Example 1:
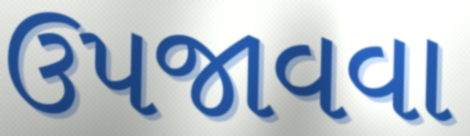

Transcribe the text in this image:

ઉપજાવવા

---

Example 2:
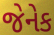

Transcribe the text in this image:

જેનેક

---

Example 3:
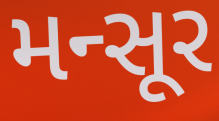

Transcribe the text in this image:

મન્સૂર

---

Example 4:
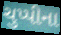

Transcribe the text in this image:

ચુપ્પીના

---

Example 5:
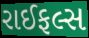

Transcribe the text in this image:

રાઈફલ્સ